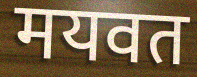
मयवत